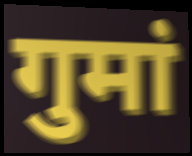
गुमां